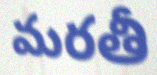
మరతీ